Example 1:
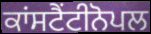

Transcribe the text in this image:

ਕਾਂਸਟੈਂਟੀਨੋਪਲ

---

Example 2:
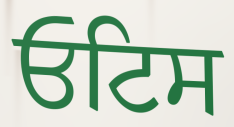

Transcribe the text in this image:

ਓਟਿਸ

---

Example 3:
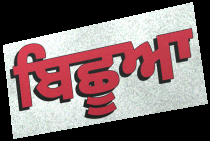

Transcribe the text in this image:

ਬਿਛੂਆ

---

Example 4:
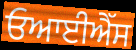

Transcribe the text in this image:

ਓਆਈਐੱਸ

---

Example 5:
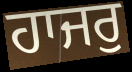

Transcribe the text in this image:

ਹਾਜਰੁ